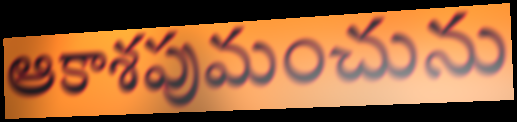
ఆకాశపుమంచును